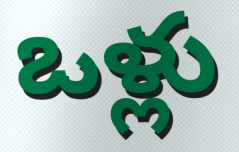
ఒళ్లు